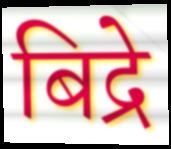
बिद्रे